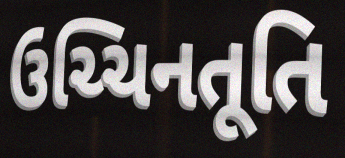
ઉચ્ચિનતૂતિ